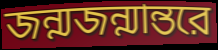
জন্মজন্মান্তরে